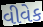
વીવેક